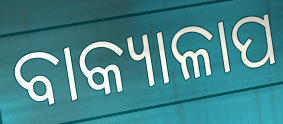
ବାକ୍ୟାଳାପ